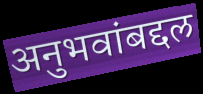
अनुभवांबद्दल